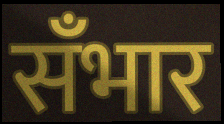
सँभार